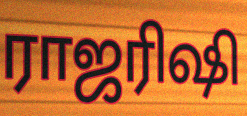
ராஜரிஷி